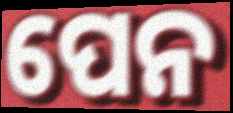
ପେନ